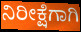
ನಿರೀಕ್ಷೆಗಾಗಿ